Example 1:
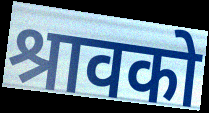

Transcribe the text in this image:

श्रावको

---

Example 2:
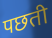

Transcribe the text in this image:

पछती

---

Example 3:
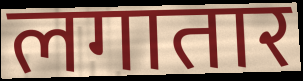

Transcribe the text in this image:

लगातार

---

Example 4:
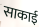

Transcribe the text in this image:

साकाई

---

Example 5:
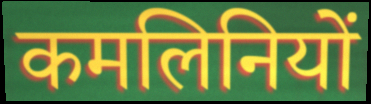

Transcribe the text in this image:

कमलिनियों